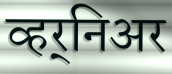
व्हर्निअर